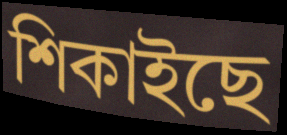
শিকাইছে